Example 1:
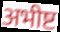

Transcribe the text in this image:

अभीष्ट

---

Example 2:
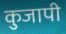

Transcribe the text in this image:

कुजापी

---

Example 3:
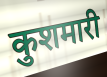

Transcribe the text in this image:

कुशमारी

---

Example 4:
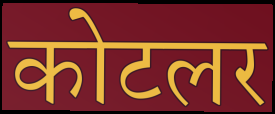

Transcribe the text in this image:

कोटलर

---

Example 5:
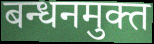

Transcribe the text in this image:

बन्धनमुक्त